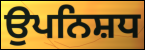
ਉਪਨਿਸ਼ਧ